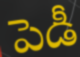
పెడీ